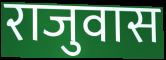
राजुवास